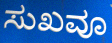
ಸುಖವೂ